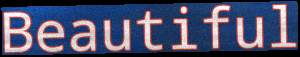
Beautiful